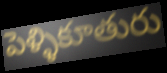
పెళ్ళికూతురు